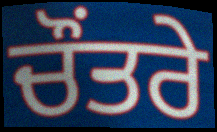
ਚੌਂਤਰੇ